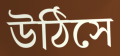
উঠিসে